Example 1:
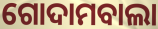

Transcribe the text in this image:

ଗୋଦାମବାଲା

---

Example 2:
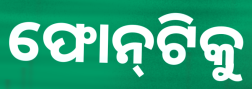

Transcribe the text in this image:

ଫୋନ୍‌ଟିକୁ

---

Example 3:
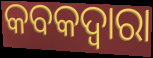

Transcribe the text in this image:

କବକଦ୍ୱାରା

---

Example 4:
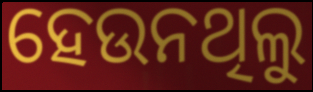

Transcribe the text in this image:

ହେଉନଥିଲୁ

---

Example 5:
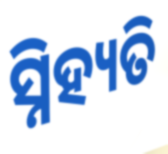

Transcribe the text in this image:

ସ୍ନିହ୍ୟତି